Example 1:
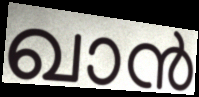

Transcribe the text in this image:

ഖാൻ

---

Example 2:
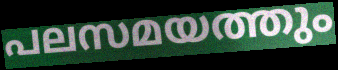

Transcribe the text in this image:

പലസമയത്തും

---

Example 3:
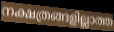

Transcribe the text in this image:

നക്ഷത്രങ്ങളില്ലാത്ത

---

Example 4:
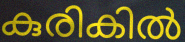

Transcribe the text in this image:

കുരികിൽ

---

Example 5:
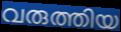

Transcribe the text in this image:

വരുത്തിയ